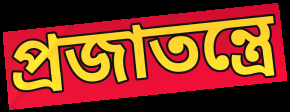
প্রজাতন্ত্রে